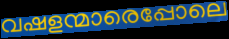
വഷളന്മാരെപ്പോലെ